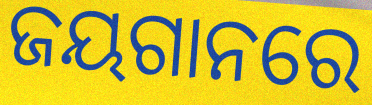
ଜୟଗାନରେ